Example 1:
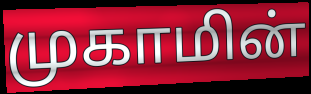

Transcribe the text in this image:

முகாமின்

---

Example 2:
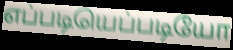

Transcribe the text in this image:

எப்படியெப்படியோ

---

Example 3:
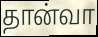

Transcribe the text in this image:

தான்வா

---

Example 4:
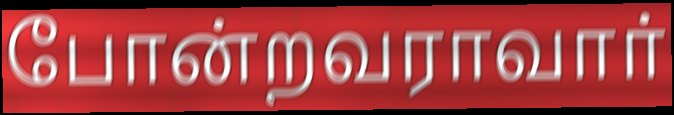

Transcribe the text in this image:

போன்றவராவார்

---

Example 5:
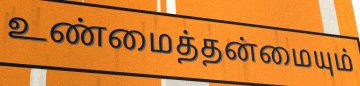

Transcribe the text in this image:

உண்மைத்தன்மையும்